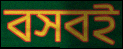
বসবই